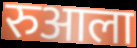
रुआला